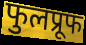
फुलप्रूफ